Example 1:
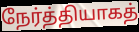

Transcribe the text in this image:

நேர்த்தியாகத்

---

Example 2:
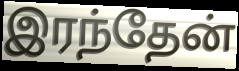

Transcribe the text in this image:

இரந்தேன்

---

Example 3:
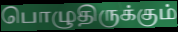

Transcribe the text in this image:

பொழுதிருக்கும்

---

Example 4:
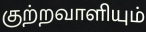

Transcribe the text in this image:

குற்றவாளியும்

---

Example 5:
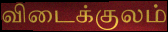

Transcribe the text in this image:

விடைக்குலம்